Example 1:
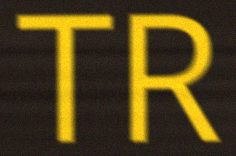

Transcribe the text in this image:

TR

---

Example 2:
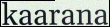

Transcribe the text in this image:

kaarana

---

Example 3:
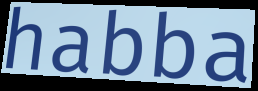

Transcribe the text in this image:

habba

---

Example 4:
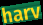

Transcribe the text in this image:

harv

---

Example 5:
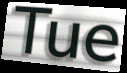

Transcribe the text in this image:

Tue